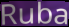
Ruba